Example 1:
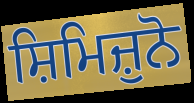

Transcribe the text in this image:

ਸ਼ਿਮਿਜ਼ੁਨੋ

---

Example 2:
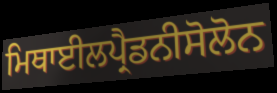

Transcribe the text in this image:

ਮਿਥਾਈਲਪ੍ਰੈਡਨੀਸੋਲੋਨ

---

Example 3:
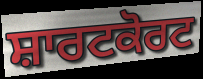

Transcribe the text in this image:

ਸ਼ਾਰਟਕੋਰਟ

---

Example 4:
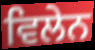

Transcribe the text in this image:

ਵਿਲੇਨ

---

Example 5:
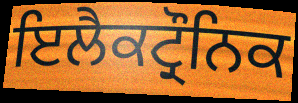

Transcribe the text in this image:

ਇਲੈਕਟ੍ਰੌਨਿਕ